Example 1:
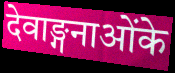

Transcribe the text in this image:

देवाङ्गनाओंके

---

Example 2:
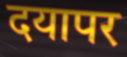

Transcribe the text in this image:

दयापर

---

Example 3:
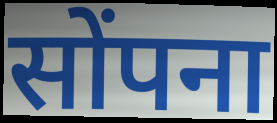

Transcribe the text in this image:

सोंपना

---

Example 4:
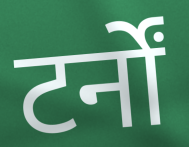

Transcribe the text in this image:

टर्नों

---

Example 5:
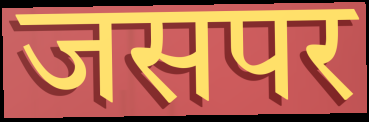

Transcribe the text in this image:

जसपर